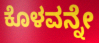
ಕೊಳವನ್ನೇ